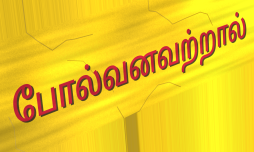
போல்வனவற்றால்